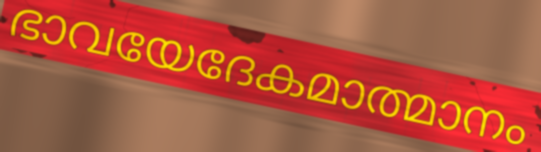
ഭാവയേദേകമാത്മാനം